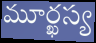
మూర్ఖస్య